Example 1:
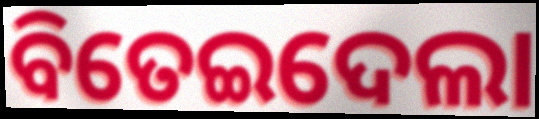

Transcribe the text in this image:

ବିତେଇଦେଲା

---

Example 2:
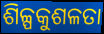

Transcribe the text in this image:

ଶିଳ୍ପକୁଶଳତା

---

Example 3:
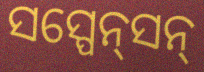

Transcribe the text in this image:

ସସ୍ପେନ୍‌ସନ୍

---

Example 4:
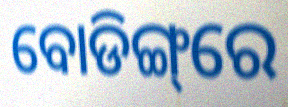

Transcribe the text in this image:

ବୋଡିଙ୍ଗ୍‌ରେ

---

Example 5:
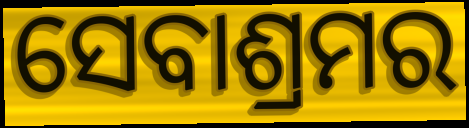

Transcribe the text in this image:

ସେବାଶ୍ରମର